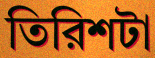
তিরিশটা